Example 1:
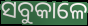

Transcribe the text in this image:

ସବୁକାଳେ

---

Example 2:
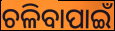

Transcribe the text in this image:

ଚଳିବାପାଇଁ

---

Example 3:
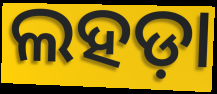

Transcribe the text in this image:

ଲହଡ଼ା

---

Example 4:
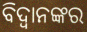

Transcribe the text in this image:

ବିଦ୍ୱାନଙ୍କର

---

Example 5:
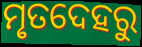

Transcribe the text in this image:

ମୃତଦେହରୁ